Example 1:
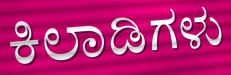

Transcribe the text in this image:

ಕಿಲಾಡಿಗಳು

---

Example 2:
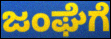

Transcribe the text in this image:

ಜಂಘೆಗೆ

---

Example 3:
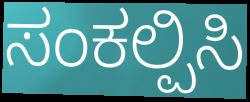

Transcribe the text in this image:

ಸಂಕಲ್ಪಿಸಿ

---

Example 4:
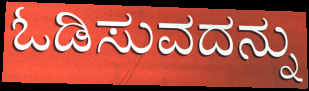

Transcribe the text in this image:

ಓಡಿಸುವದನ್ನು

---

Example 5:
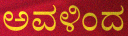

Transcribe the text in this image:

ಅವಳಿಂದ